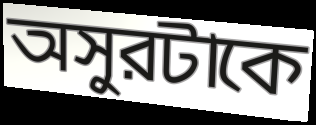
অসুরটাকে